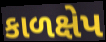
કાળક્ષેપ